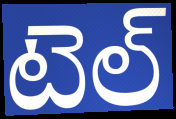
టెల్